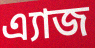
এ্যাজ